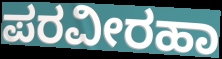
ಪರವೀರಹಾ